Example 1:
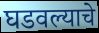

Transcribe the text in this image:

घडवल्याचे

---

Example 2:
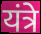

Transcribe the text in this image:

यंत्रे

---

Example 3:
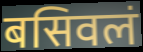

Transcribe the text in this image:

बसिवलं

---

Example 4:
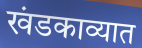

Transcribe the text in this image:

खंडकाव्यात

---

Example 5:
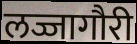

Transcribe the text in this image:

लज्जागौरी